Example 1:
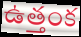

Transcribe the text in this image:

ఉత్తంక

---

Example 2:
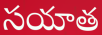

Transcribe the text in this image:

సయాత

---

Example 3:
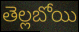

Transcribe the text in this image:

తెల్లబోయి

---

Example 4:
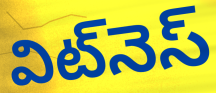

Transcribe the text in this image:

విట్‌నెస్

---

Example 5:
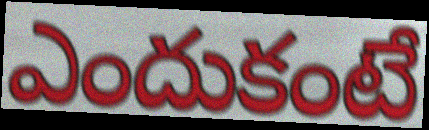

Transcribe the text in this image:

ఎందుకంటే